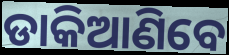
ଡାକିଆଣିବେ